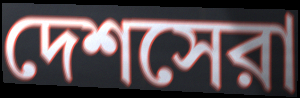
দেশসেরা